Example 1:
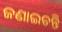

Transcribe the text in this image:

ଜଣାଇଚନ୍ତି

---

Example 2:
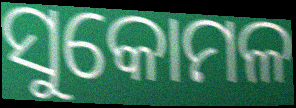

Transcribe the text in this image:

ସୁକୋମଳ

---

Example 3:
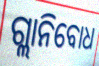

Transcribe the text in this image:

ଗ୍ଲାନିବୋଧ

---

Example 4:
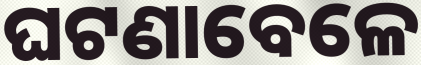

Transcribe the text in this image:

ଘଟଣାବେଳେ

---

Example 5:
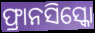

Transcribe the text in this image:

ଫ୍ରାନସିସ୍କୋ